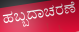
ಹಬ್ಬದಾಚರಣೆ